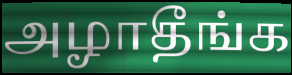
அழாதீங்க